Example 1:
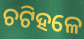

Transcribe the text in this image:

ଚଟିହଳେ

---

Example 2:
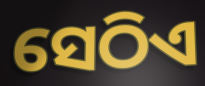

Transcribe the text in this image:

ସେଠିଏ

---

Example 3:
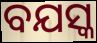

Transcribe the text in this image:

ବଯସ୍କ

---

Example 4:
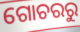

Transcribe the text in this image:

ଗୋଚରରୁ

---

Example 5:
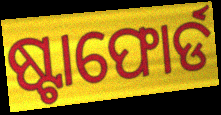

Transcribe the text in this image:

ଷ୍ଟାଫୋର୍ଡ